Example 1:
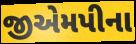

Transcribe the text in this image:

જીએમપીના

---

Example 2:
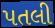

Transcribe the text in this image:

પતલી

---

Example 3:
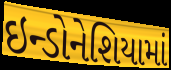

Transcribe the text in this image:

ઇન્ડોનેશિયામાં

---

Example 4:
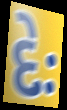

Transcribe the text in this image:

દેઃ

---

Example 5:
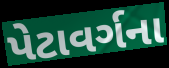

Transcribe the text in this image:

પેટાવર્ગના